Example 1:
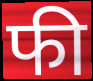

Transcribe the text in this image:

फी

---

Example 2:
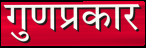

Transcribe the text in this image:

गुणप्रकार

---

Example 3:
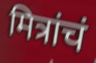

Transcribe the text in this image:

मित्रांचं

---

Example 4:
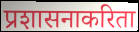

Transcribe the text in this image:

प्रशासनाकरिता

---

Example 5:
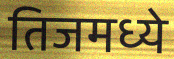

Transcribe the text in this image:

तिजमध्ये